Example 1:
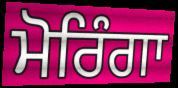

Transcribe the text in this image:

ਮੋਰਿੰਗਾ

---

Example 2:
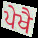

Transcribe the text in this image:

ਪੇਖੈ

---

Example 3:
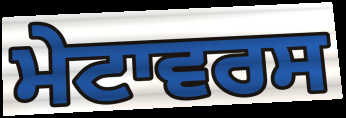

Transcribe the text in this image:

ਮੇਟਾਵਰਸ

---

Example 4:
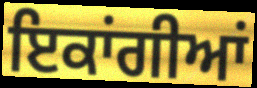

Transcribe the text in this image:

ਇਕਾਂਗੀਆਂ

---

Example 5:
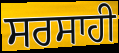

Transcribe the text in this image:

ਸਰਸਾਹੀ